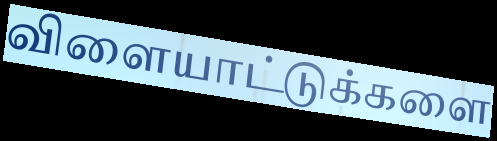
விளையாட்டுக்களை